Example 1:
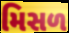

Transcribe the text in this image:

મિસળ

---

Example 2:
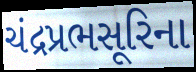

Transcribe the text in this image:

ચંદ્રપ્રભસૂરિના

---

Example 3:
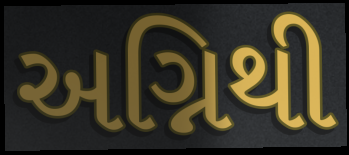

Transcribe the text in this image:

અગ્નિથી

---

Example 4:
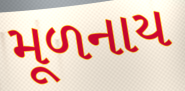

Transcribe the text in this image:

મૂળનાય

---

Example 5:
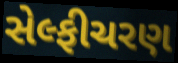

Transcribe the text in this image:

સેલ્ફીચરણ